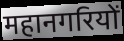
महानगरियों